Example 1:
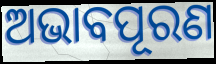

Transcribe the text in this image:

ଅଭାବପୂରଣ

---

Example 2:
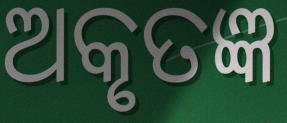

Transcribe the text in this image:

ଅକୃତଜ୍ଞ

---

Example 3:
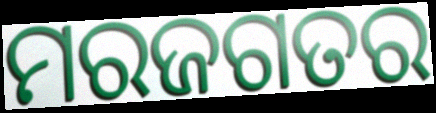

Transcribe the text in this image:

ମରଜଗତର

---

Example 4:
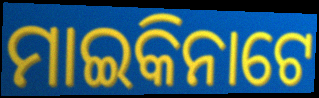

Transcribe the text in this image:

ମାଇକିନାଟେ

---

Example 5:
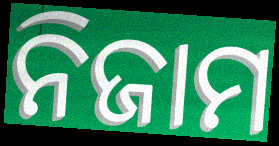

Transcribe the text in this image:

ନିଜାମ